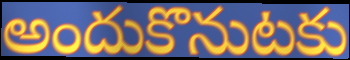
అందుకొనుటకు